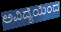
ಅವಿದ್ಯೆಯಿಂದ